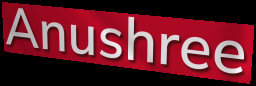
Anushree